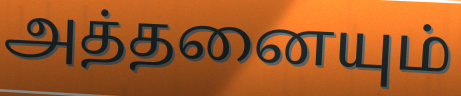
அத்தனையும்